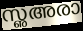
സൢഅരാ